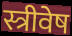
स्त्रीवेष